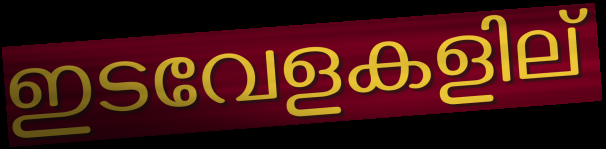
ഇടവേളകളില്